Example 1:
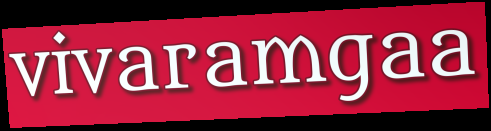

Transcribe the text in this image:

vivaramgaa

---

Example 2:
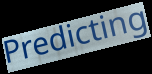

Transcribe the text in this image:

Predicting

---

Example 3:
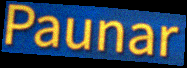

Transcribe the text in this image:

Paunar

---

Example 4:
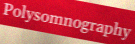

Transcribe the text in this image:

Polysomnography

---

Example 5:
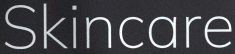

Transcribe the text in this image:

Skincare